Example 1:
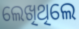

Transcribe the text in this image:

ଲେଖିଥିଲେ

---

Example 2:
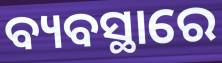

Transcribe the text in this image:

ବ୍ୟବସ୍ଥାରେ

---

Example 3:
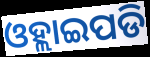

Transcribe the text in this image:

ଓହ୍ଲାଇପଡି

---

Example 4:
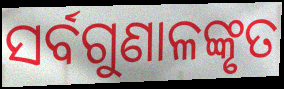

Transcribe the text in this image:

ସର୍ବଗୁଣାଳଙ୍କୃତ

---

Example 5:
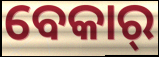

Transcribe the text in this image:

ବେକାର୍